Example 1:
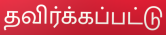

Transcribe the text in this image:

தவிர்க்கப்பட்டு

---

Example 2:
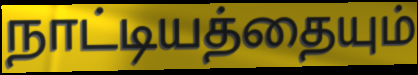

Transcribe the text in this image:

நாட்டியத்தையும்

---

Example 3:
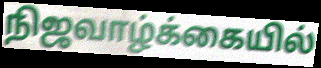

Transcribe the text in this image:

நிஜவாழ்க்கையில்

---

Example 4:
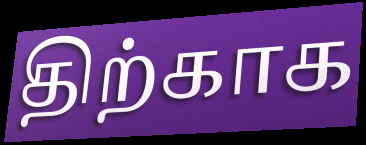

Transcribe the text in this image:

திற்காக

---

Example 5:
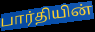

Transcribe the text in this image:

பார்தியின்